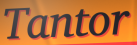
Tantor